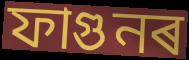
ফাগুনৰ